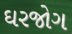
ઘરજોગ